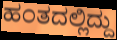
ಹಂತದಲ್ಲಿದ್ದು